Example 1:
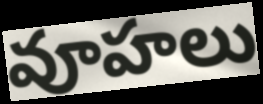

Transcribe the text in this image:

వూహలు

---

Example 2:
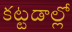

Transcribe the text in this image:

కట్టడాల్లో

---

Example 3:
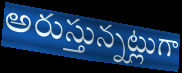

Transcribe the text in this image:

అరుస్తున్నట్లుగా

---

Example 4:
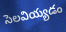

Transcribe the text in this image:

సెలవియ్యడం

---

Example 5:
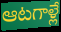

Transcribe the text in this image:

ఆటగాళ్లే